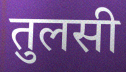
तुलसी